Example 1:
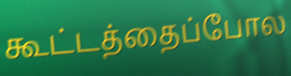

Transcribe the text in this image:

கூட்டத்தைப்போல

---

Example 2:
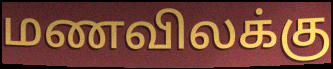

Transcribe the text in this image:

மணவிலக்கு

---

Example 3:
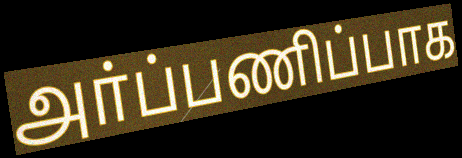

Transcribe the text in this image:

அர்ப்பணிப்பாக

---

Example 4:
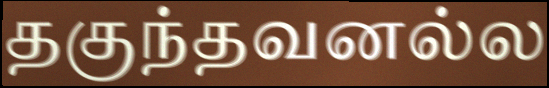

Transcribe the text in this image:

தகுந்தவனல்ல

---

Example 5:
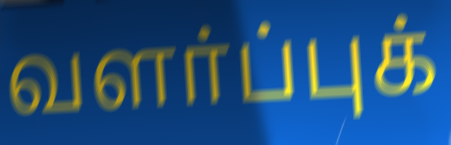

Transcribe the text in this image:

வளர்ப்புக்